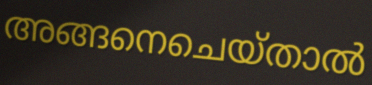
അങ്ങനെചെയ്താൽ